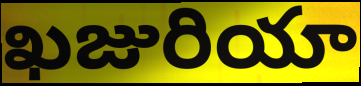
ఖజురియా